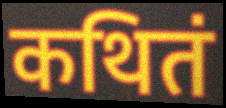
कथितं